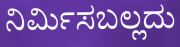
ನಿರ್ಮಿಸಬಲ್ಲದು